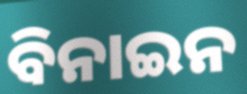
ବିନାଇନ